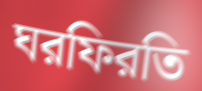
ঘরফিরতি